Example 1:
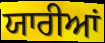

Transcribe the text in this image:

ਯਾਰੀਆਂ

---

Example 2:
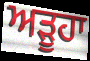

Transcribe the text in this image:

ਅੜੂਹਾ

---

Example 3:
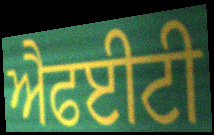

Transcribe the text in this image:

ਐਫਈਟੀ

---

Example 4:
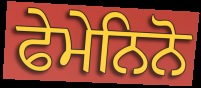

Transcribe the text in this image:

ਫੇਮੇਨਿਨੋ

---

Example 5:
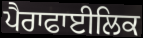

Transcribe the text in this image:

ਪੈਰਾਫਾਈਲਿਕ